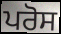
ਪਰੋਸ